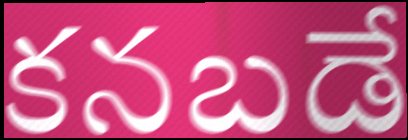
కనబడే